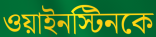
ওয়াইনস্টিনকে